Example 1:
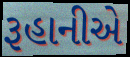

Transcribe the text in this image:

રૂહાનીએ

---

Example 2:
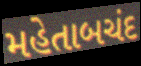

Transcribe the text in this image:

મહેતાબચંદ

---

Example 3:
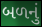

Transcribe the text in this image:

બળનું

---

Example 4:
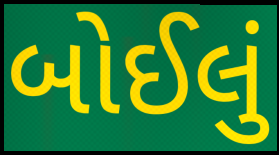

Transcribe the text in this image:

બોઈલું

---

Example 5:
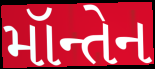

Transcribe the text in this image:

મૉન્તેન